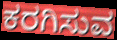
ಕರಗಿಸುವ